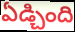
ఏడ్చింది